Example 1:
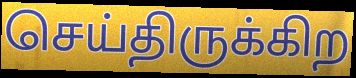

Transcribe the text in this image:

செய்திருக்கிற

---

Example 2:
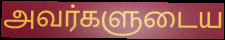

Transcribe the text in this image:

அவர்களுடைய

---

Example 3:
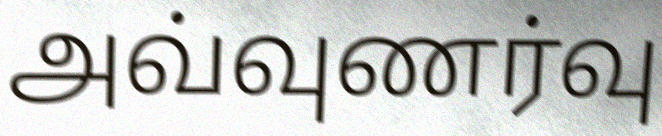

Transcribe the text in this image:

அவ்வுணர்வு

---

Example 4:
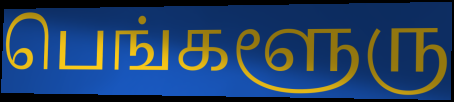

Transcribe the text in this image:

பெங்களூரு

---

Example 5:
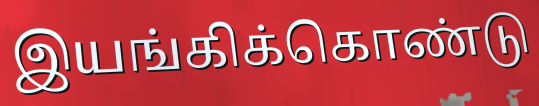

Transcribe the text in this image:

இயங்கிக்கொண்டு